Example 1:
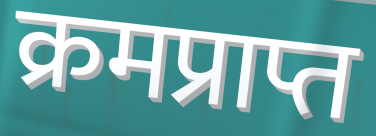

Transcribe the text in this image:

क्रमप्राप्त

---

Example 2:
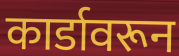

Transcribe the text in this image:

कार्डावरून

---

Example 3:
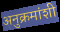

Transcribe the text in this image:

अनुक्रमांशी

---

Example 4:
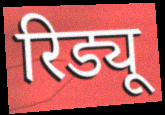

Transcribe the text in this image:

रिड्यू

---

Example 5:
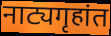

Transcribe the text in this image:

नाट्यगृहांत